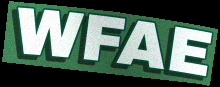
WFAE